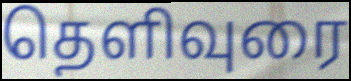
தெளிவுரை